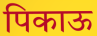
पिकाऊ